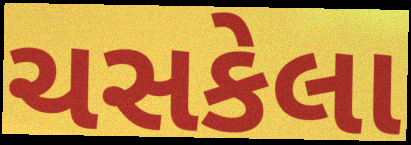
ચસકેલા